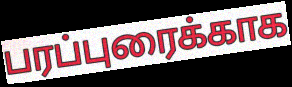
பரப்புரைக்காக